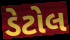
ડેટોલ